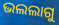
ଭଲଲାଗୁ